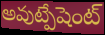
అవుట్పేషెంట్